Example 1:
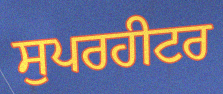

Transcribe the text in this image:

ਸੁਪਰਹੀਟਰ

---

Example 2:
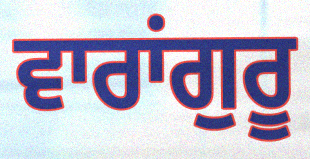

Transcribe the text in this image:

ਵਾਰਾਂਗੁਰੂ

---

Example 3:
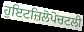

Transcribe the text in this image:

ਹੁਇਟਜ਼ਿਲੋਪੋਚਟਲੀ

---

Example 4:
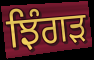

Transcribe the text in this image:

ਝਿੰਗੜ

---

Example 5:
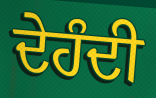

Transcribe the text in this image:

ਦੇਹੰਦੀ